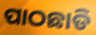
ପାଠଛାଡି